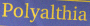
Polyalthia